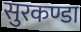
सुरकण्डा